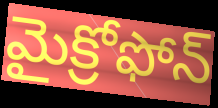
మైక్రోఫోన్